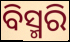
ବିସ୍ମରି